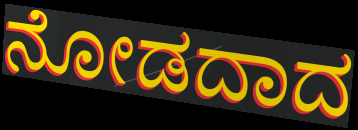
ನೋಡದಾದ